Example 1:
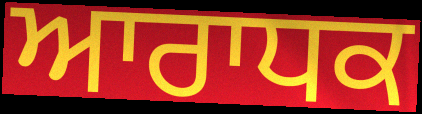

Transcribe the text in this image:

ਆਰਾਧਕ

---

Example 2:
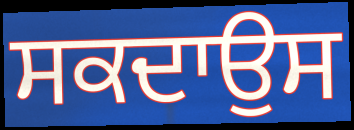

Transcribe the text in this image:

ਸਕਦਾਉਸ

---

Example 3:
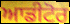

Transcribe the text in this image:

ਆਡੀਟੋਰ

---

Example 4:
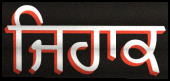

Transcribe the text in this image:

ਜਿਹਾਕ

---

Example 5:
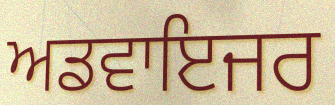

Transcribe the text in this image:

ਅਡਵਾਇਜਰ